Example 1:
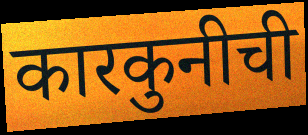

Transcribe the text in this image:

कारकुनीची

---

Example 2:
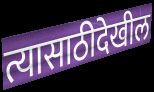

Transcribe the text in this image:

त्यासाठीदेखील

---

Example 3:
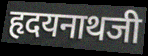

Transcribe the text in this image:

हृदयनाथजी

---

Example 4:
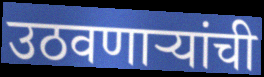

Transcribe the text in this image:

उठवणाऱ्यांची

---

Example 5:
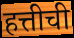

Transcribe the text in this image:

हत्तीची